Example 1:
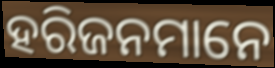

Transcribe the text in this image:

ହରିଜନମାନେ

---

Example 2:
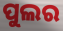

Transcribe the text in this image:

ପୁଲର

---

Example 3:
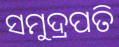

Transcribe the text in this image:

ସମୁଦ୍ରପତି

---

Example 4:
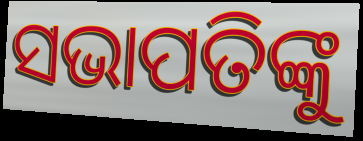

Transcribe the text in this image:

ସଭାପତିଙ୍କୁ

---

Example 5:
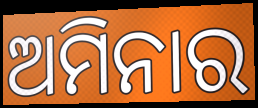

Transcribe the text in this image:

ଅମିନାର